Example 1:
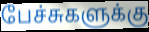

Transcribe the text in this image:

பேச்சுகளுக்கு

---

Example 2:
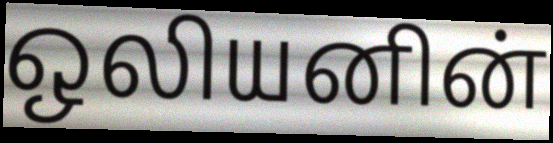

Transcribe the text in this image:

ஒலியனின்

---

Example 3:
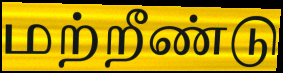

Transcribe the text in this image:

மற்றீண்டு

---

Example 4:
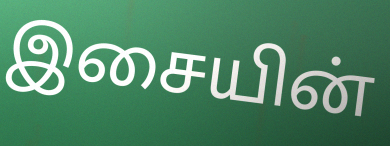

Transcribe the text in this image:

இசையின்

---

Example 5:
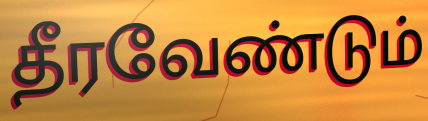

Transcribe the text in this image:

தீரவேண்டும்